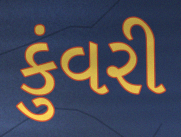
કુંવરી